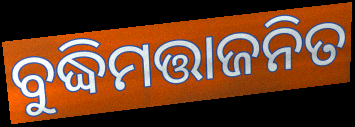
ବୁଦ୍ଧିମତ୍ତାଜନିତ